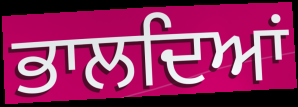
ਭਾਲਦਿਆਂ